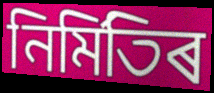
নিৰ্মিতিৰ